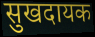
सुखदायक